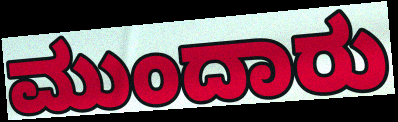
ಮುಂದಾರು